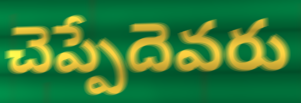
చెప్పేదెవరు